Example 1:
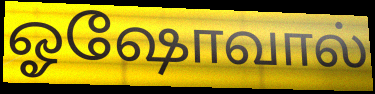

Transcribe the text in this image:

ஓஷோவால்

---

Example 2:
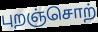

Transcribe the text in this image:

புறஞ்சொற்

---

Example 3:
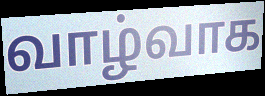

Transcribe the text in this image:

வாழ்வாக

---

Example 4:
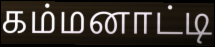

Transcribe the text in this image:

கம்மனாட்டி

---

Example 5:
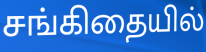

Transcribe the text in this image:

சங்கிதையில்